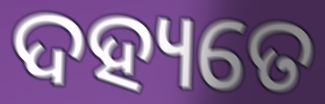
ଦହ୍ୟତେ